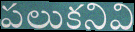
పలుకనివి